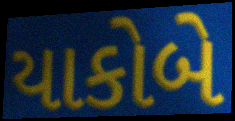
યાકોબે